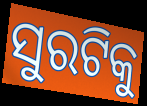
ସୁରଟିକୁ